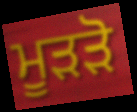
ਮੂੜੜੋ